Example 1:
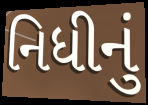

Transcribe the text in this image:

નિધીનું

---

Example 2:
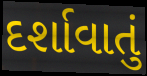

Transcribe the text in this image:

દર્શાવાતું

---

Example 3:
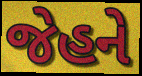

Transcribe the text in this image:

જેહને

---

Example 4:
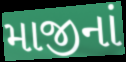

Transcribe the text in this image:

માજીનાં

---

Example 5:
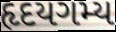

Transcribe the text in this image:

હૃદયગમ્ય